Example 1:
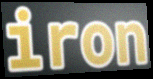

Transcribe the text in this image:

iron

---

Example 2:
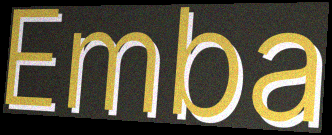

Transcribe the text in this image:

Emba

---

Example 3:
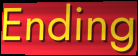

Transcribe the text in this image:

Ending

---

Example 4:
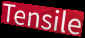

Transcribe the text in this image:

Tensile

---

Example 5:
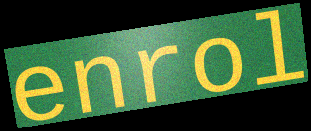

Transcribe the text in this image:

enrol